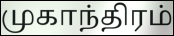
முகாந்திரம்